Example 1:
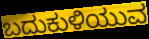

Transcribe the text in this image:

ಬದುಕುಳಿಯುವ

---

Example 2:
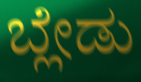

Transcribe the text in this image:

ಬ್ಲೇಡು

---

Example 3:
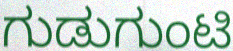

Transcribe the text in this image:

ಗುಡುಗುಂಟಿ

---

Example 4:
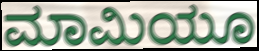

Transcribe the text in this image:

ಮಾಮಿಯೂ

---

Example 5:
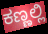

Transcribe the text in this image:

ಕಣ್ಣಲ್ಲಿ